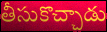
తీసుకొచ్చాడు